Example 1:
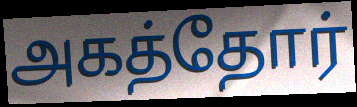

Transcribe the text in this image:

அகத்தோர்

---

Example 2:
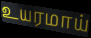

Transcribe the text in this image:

உயரமாய்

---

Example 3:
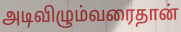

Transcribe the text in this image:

அடிவிழும்வரைதான்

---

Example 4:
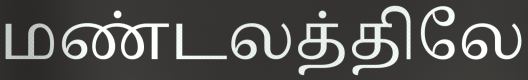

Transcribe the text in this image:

மண்டலத்திலே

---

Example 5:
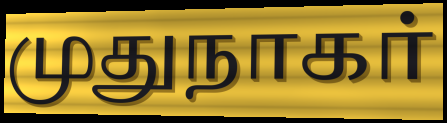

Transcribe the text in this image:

முதுநாகர்